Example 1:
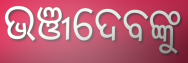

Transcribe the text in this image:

ଭଞ୍ଜଦେବଙ୍କୁ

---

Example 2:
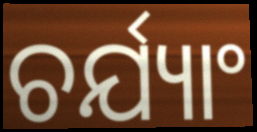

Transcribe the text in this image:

ଚର୍ଯ୍ୟାଂ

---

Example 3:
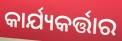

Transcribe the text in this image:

କାର୍ଯ୍ୟକର୍ତ୍ତାର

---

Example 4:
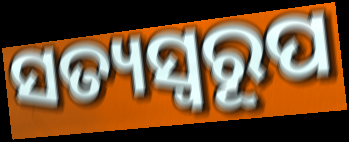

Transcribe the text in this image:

ସତ୍ୟସ୍ୱରୂପ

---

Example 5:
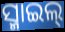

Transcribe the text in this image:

ସ୍ମାଇଲ୍